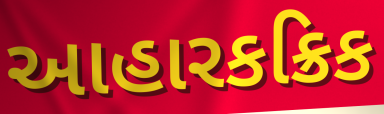
આહારકક્રિક